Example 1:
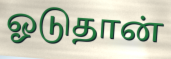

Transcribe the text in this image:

ஓடுதான்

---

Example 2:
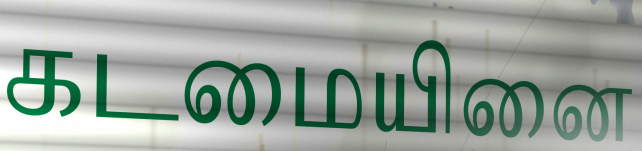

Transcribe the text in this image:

கடமையினை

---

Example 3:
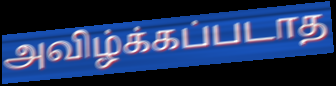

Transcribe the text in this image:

அவிழ்க்கப்படாத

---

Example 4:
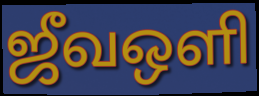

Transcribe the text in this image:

ஜீவஒளி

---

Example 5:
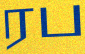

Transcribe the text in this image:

ரப